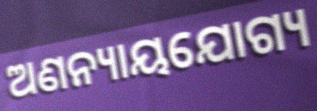
ଅଣନ୍ୟାୟଯୋଗ୍ୟ